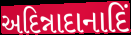
અદિન્નાદાનાદિં